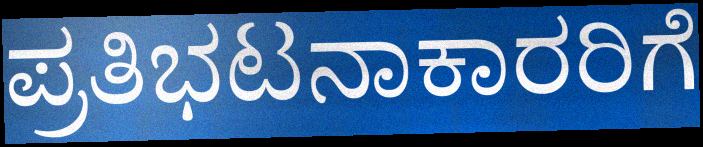
ಪ್ರತಿಭಟನಾಕಾರರಿಗೆ